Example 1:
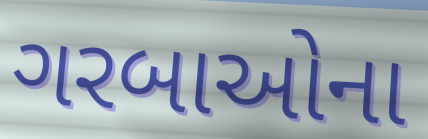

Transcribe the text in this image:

ગરબાઓના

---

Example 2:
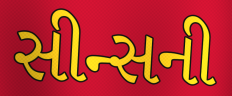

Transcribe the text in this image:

સીન્સની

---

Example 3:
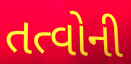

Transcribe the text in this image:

તત્વોની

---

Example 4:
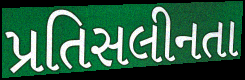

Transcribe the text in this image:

પ્રતિસલીનતા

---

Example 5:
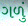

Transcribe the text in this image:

ગળું